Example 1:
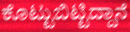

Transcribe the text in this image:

ಕೊಟ್ಟುಬಿಟ್ಟಿದ್ದಾನೆ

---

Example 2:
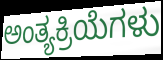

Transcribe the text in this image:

ಅಂತ್ಯಕ್ರಿಯೆಗಳು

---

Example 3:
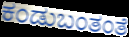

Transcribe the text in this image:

ಕಂಡುಬಂತಂತೆ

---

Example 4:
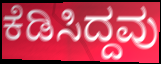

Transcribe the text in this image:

ಕೆಡಿಸಿದ್ದವು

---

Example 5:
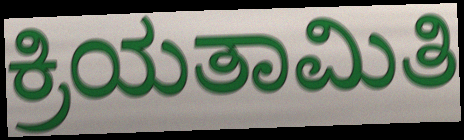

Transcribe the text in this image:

ಕ್ರಿಯತಾಮಿತಿ